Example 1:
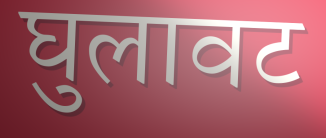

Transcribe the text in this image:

घुलावट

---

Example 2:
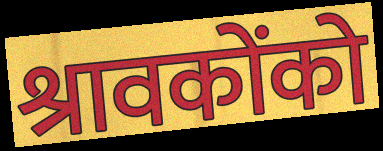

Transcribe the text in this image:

श्रावकोंको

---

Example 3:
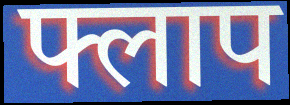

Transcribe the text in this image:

फ्लाप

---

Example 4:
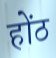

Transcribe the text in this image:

होंठ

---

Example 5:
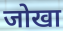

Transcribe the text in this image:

जोखा